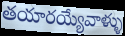
తయారయ్యేవాళ్ళు